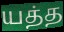
யத்த